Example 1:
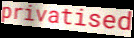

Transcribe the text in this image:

privatised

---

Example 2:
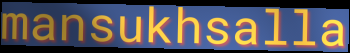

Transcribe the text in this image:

mansukhsalla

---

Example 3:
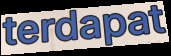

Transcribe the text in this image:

terdapat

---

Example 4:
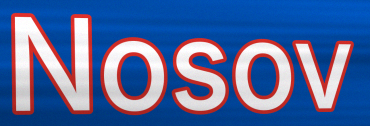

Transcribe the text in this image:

Nosov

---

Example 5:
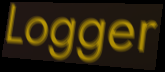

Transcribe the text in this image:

Logger